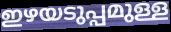
ഇഴയടുപ്പമുള്ള